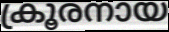
ക്രൂരനായ